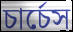
চার্চেস